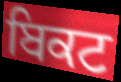
ਬਿਕਟ